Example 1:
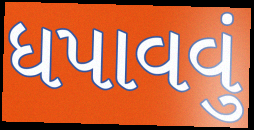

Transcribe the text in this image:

ધપાવવું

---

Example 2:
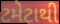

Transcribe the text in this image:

ટમેટાથી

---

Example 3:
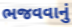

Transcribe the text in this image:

ભજવવાનું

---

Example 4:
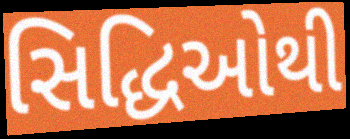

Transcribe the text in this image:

સિદ્ધિઓથી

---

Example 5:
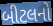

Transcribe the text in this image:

બીટલનો